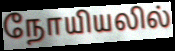
நோயியலில்